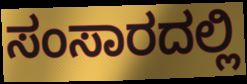
ಸಂಸಾರದಲ್ಲಿ